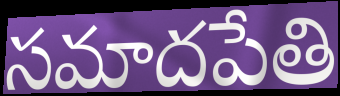
సమాదపేతి